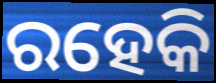
ରହେକି